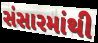
સંસારમાંથી